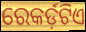
ରେକର୍ଡ଼ଟିଏ